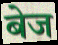
बेज